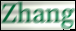
Zhang